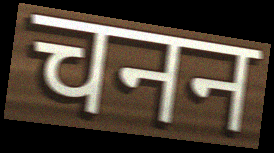
चनन